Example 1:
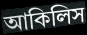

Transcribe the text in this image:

আকিলিস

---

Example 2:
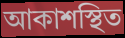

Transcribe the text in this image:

আকাশস্থিত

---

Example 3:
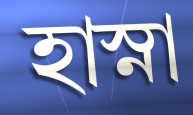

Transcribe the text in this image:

হাস্না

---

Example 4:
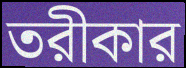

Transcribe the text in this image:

তরীকার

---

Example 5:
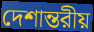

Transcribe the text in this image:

দেশান্তরীয়